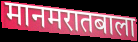
मानमरातबाला